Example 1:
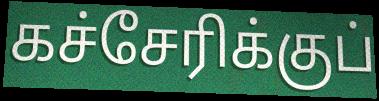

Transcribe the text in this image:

கச்சேரிக்குப்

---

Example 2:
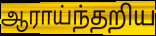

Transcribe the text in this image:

ஆராய்ந்தறிய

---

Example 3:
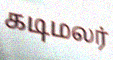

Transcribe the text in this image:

கடிமலர்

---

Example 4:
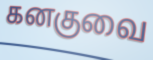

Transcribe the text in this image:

கனகுவை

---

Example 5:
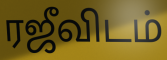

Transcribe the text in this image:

ரஜீவிடம்